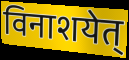
विनाशयेत्